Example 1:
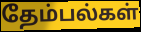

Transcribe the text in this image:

தேம்பல்கள்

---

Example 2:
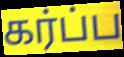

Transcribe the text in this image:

கர்ப்ப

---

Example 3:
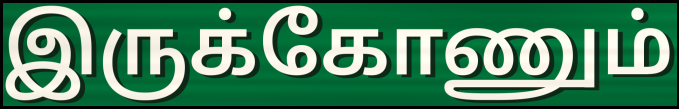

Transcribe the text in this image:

இருக்கோணும்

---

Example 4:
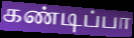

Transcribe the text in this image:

கண்டிப்பா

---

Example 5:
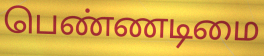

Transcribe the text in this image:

பெண்ணடிமை